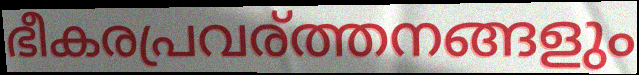
ഭീകരപ്രവര്ത്തനങ്ങളും